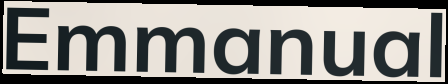
Emmanual